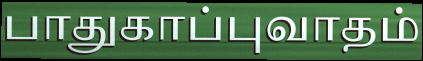
பாதுகாப்புவாதம்